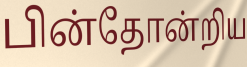
பின்தோன்றிய